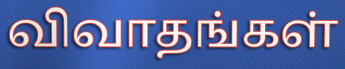
விவாதங்கள்